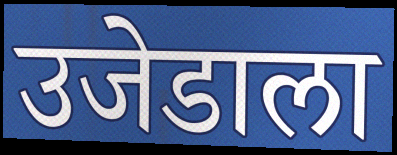
उजेडाला